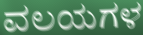
ವಲಯಗಳ